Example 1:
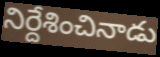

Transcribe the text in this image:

నిర్దేశించినాడు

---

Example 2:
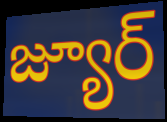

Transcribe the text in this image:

జ్యూర్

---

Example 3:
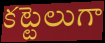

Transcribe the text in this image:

కట్టెలుగా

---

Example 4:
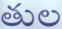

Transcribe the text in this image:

తుల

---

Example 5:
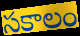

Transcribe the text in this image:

సకాలం